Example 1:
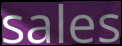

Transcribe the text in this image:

sales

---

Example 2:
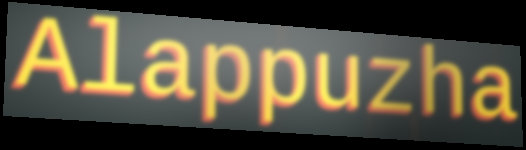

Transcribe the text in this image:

Alappuzha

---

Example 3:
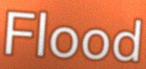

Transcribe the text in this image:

Flood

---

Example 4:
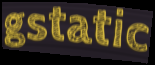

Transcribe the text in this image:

gstatic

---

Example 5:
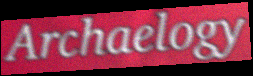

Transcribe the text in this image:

Archaelogy